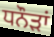
ਧਨੌੜਾਂ